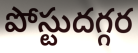
పోస్టుదగ్గర